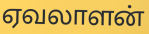
ஏவலாளன்